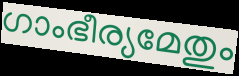
ഗാംഭീര്യമേതും